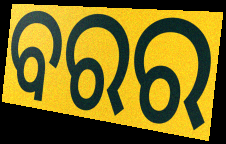
ବରର